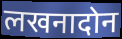
लखनादोन